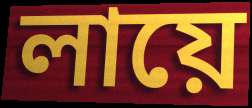
লায়ে